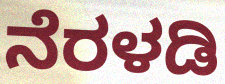
ನೆರಳಡಿ